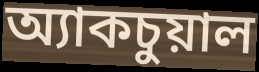
অ্যাকচুয়াল